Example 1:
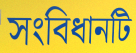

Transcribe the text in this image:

সংবিধানটি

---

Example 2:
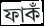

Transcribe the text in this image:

ফাকঁ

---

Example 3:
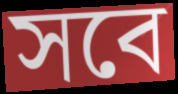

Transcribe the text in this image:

সবে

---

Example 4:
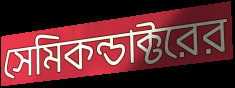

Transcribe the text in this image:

সেমিকন্ডাক্টরের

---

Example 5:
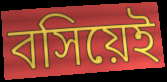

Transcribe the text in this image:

বসিয়েই